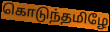
கொடுந்தமிழே